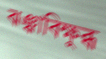
ঝঞ্ঝাবিক্ষুব্ধ